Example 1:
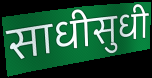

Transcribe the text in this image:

साधीसुधी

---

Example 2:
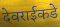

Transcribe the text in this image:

देवराईकडे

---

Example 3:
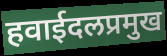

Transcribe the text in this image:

हवाईदलप्रमुख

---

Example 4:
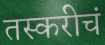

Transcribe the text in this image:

तस्करीचं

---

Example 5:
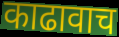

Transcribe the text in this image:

काढावाच